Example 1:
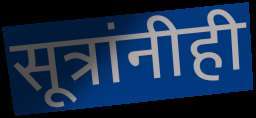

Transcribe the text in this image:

सूत्रांनीही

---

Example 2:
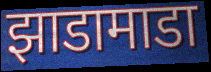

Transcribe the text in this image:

झाडामाडा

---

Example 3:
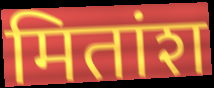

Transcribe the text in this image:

मितांश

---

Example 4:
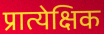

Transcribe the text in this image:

प्रात्येक्षिक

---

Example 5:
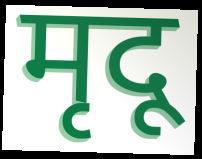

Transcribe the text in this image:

मृदू